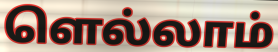
ளெல்லாம்